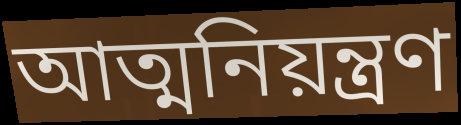
আত্মনিয়ন্ত্ৰণ